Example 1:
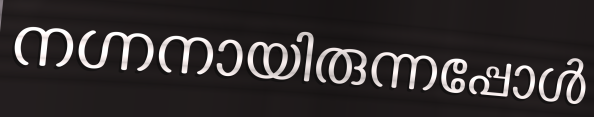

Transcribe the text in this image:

നഗ്നനായിരുന്നപ്പോൾ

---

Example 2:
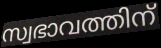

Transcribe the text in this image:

സ്വഭാവത്തിന്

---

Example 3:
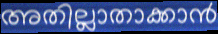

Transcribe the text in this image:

അതില്ലാതാക്കാൻ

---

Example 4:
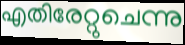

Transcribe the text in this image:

എതിരേറ്റുചെന്നു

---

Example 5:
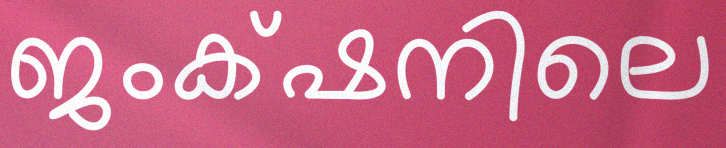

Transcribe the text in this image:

ജംക്‌ഷനിലെ